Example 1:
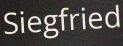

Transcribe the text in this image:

Siegfried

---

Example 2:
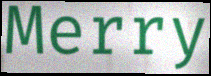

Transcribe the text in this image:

Merry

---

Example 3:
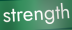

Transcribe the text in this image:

strength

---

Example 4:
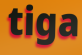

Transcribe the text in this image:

tiga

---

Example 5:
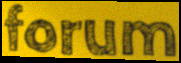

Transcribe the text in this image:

forum